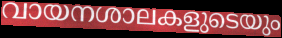
വായനശാലകളുടെയും